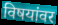
विषयांवर